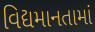
વિદ્યમાનતામાં